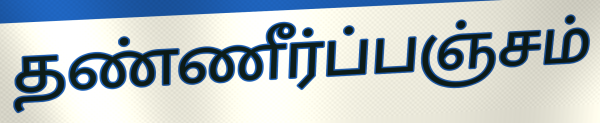
தண்ணீர்ப்பஞ்சம்